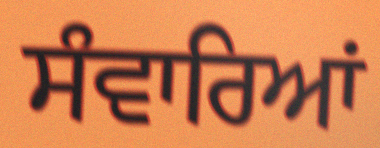
ਸੰਵਾਰਿਆਂ